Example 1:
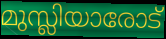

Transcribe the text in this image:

മുസ്ലിയാരോട്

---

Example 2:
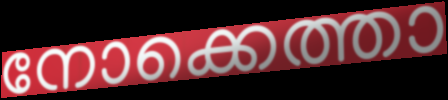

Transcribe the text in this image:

നോക്കെത്താ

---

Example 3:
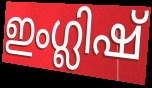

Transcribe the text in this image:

ഇംഗ്ലിഷ്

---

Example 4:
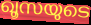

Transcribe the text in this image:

ഖൂസയുടെ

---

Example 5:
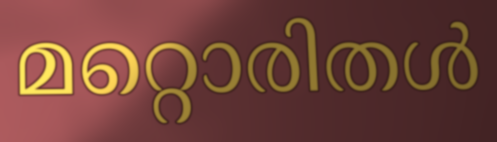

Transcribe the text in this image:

മറ്റൊരിതൾ